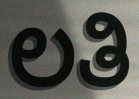
ಲತಿ